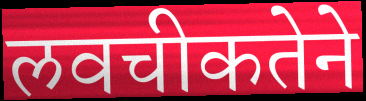
लवचीकतेने